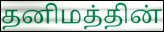
தனிமத்தின்